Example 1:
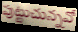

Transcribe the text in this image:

పుట్టుచున్నవో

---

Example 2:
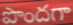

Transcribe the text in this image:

పొందగా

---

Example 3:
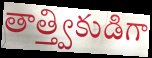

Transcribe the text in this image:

తాత్త్వికుడిగా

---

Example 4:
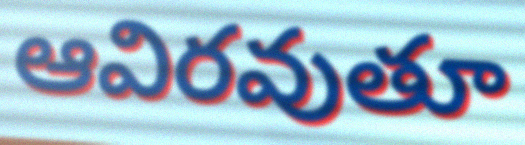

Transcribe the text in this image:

ఆవిరవుతూ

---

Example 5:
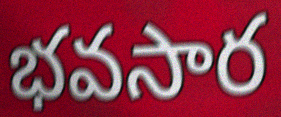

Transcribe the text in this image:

భవసార